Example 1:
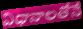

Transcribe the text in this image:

విధానాలతోనే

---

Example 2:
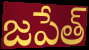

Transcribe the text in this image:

జపేత్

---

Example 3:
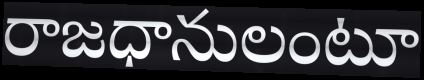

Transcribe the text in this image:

రాజధానులంటూ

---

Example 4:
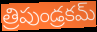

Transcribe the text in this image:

త్రిపుండ్రకమ్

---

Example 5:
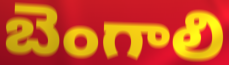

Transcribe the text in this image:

బెంగాలి